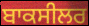
ਬਾਕਸੀਲਰ